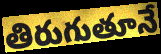
తిరుగుతూనే